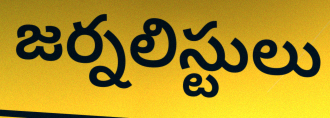
జర్నలిస్టులు